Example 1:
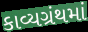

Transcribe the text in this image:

કાવ્યગ્રંથમાં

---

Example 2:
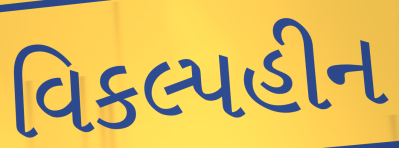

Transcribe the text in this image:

વિકલ્પહીન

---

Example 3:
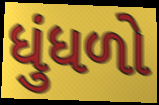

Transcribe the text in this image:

ધુંધળો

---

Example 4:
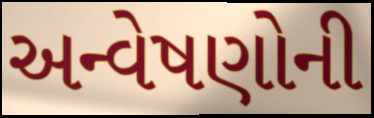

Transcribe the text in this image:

અન્વેષણોની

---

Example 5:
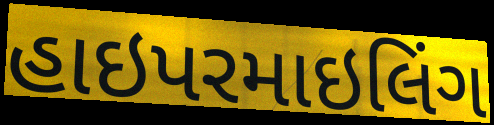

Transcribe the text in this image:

હાઇપરમાઇલિંગ